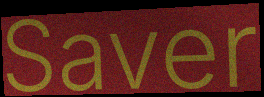
Saver